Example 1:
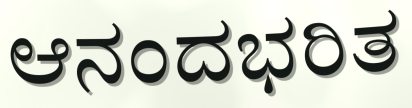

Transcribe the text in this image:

ಆನಂದಭರಿತ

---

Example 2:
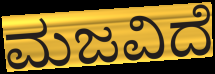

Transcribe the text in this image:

ಮಜವಿದೆ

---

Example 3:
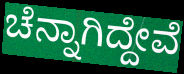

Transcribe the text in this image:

ಚೆನ್ನಾಗಿದ್ದೇವೆ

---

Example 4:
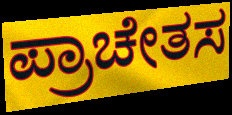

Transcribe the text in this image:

ಪ್ರಾಚೇತಸ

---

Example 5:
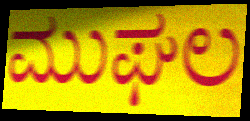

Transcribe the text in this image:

ಮುಘಲ